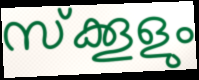
സ്ക്കൂളും